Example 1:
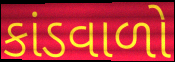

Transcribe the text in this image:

કાંડવાળો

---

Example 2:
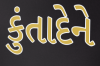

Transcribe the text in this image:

કુંતાદેને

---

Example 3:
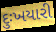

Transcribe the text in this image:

દુઃખયારી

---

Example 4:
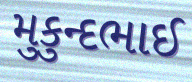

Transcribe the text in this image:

મુકુન્દભાઈ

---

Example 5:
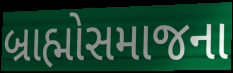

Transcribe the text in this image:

બ્રાહ્મોસમાજના